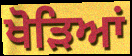
ਖੋੜਿਆਂ